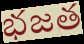
భజత